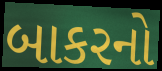
બાકરનો